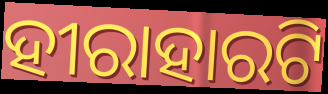
ହୀରାହାରଟି